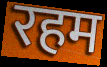
रहम